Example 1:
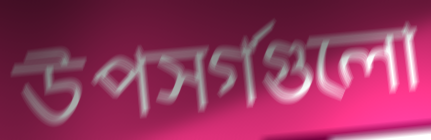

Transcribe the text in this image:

উপসর্গগুলো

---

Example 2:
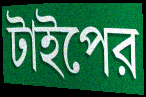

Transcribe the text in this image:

টাইপের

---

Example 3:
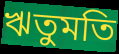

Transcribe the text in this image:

ঋতুমতি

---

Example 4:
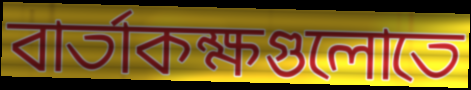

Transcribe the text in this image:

বার্তাকক্ষগুলোতে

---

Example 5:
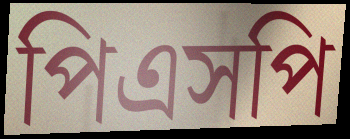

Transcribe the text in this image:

পিএসপি